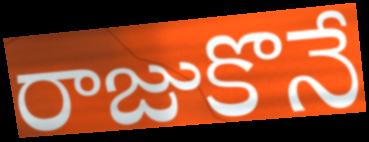
రాజుకొనే